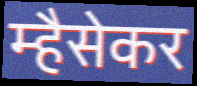
म्हैसेकर